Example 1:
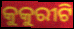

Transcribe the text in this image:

କୁକୁରୀଟି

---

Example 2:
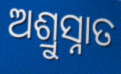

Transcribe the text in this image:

ଅଶ୍ରୁସ୍ନାତ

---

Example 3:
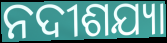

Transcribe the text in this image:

ନଦୀଶଯ୍ୟା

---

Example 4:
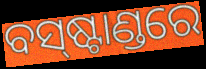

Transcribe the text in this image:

ବସ୍‌ଷ୍ଟାଣ୍ଡରେ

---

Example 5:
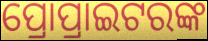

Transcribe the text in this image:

ପ୍ରୋପ୍ରାଇଟରଙ୍କ